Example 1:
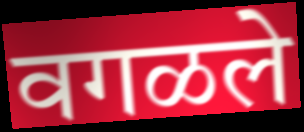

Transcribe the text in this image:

वगळले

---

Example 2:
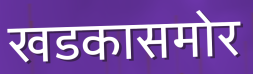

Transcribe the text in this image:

खडकासमोर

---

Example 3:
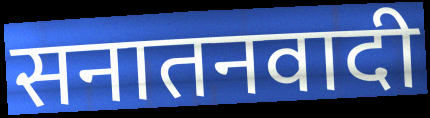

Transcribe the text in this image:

सनातनवादी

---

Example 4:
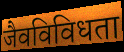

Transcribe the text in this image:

जैवविविधता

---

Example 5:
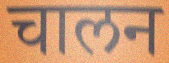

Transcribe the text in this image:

चालन